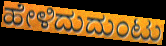
ಹೇಳಿದುದುಂಟು